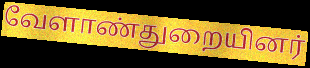
வேளாண்துறையினர்